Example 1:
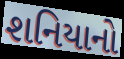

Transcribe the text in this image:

શનિયાનો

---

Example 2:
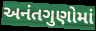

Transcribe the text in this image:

અનંતગુણોમાં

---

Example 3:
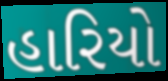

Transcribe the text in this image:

હારિયો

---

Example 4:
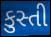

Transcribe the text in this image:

કુસ્તી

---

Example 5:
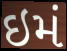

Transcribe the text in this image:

ઇમં